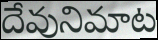
దేవునిమాట